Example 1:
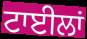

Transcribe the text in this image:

ਟਾਈਲਾਂ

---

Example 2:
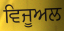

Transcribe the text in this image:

ਵਿਜੂਅਲ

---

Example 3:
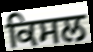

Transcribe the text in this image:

ਕਿਸਲ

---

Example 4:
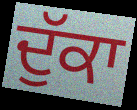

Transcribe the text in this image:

ਦੁੱਕਾ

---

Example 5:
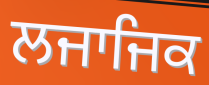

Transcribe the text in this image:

ਲਜਾਜਿਕ